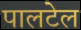
पालटेल